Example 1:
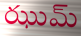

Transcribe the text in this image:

ఝుమ్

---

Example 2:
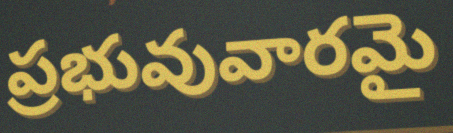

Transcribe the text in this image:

ప్రభువువారమై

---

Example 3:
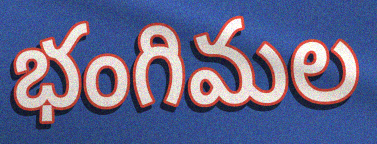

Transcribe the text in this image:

భంగిమల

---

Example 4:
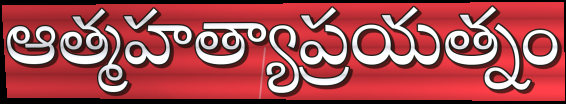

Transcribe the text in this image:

ఆత్మహత్యాప్రయత్నం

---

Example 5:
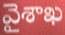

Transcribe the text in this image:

వైశాఖ